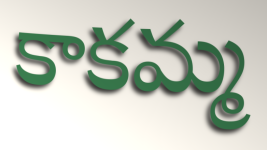
కాకమ్మ